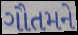
ગૌતમને